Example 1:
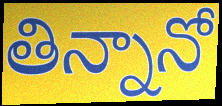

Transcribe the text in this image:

తిన్నానో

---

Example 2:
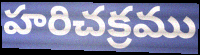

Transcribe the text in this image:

హరిచక్రము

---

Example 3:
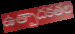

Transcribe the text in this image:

ఉత్పాదకతల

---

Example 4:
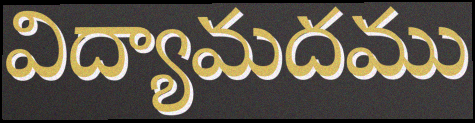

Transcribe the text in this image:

విద్యామదము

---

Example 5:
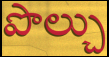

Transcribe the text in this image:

పొల్చు